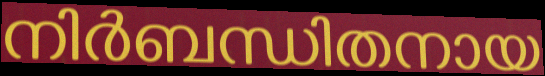
നിർബന്ധിതനായ